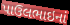
પાઉલભાઇનાં